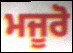
ਮਜੂਰੋ